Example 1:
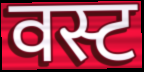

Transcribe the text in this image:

वस्ट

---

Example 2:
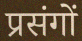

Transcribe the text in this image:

प्रसंगों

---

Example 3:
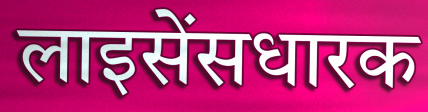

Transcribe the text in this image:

लाइसेंसधारक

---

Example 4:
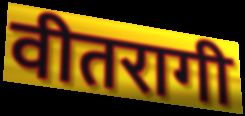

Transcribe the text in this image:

वीतरागी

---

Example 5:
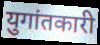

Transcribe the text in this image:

युगांतकारी